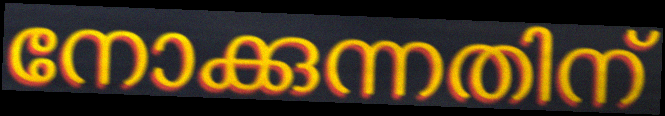
നോക്കുന്നതിന്